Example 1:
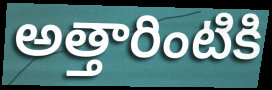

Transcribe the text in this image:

అత్తారింటికి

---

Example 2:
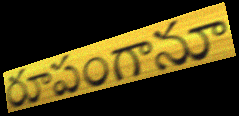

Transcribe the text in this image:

రూపంగానూ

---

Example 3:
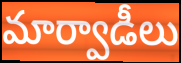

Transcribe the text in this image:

మార్వాడీలు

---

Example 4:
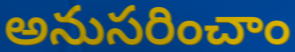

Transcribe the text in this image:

అనుసరించాం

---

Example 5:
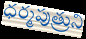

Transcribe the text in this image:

ధర్మపుత్రుని